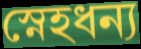
স্নেহধন্য